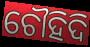
ଚୌହିଦି